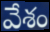
వేశం